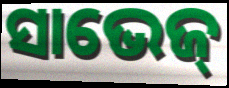
ସାଭେଜ୍